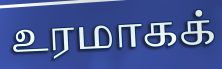
உரமாகக்